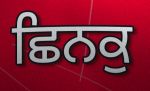
ਛਿਨਕੁ